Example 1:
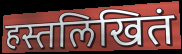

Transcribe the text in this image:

हस्तलिखितं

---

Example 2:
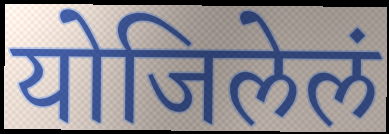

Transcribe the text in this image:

योजिलेलं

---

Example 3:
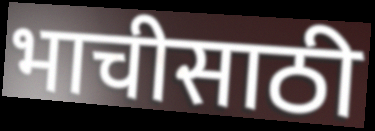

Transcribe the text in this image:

भाचीसाठी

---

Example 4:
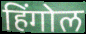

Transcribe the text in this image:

हिंगोल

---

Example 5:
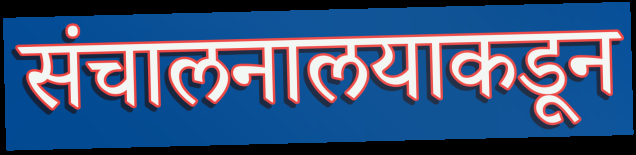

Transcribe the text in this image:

संचालनालयाकडून